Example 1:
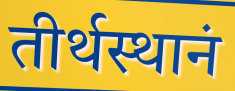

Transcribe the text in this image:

तीर्थस्थानं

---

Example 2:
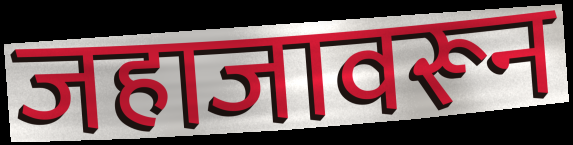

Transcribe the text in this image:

जहाजावरून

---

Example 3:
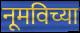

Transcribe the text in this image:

नूमविच्या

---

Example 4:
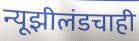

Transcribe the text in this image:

न्यूझीलंडचाही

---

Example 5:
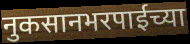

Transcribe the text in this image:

नुकसानभरपाईच्या